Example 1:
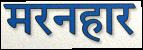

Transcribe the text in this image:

मरनहार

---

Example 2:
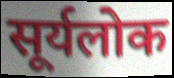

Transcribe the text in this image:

सूर्यलोक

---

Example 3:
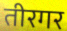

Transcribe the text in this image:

तीरगर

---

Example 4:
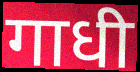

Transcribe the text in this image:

गाधी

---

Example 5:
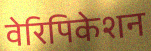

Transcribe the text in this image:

वेरिपिकेशन